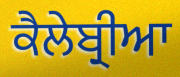
ਕੈਲੇਬ੍ਰੀਆ